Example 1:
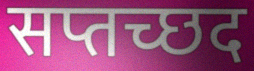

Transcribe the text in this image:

सप्तच्छद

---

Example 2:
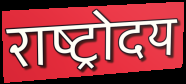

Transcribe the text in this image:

राष्ट्रोदय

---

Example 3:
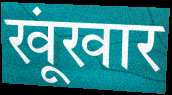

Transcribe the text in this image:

खूंखार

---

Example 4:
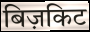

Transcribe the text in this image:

बिज़किट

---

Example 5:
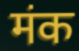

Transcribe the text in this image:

मंक